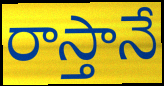
రాస్తానే